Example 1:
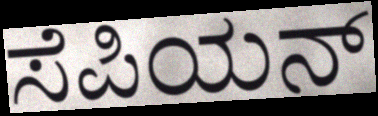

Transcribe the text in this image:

ಸೆಪಿಯನ್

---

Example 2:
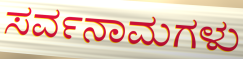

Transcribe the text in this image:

ಸರ್ವನಾಮಗಳು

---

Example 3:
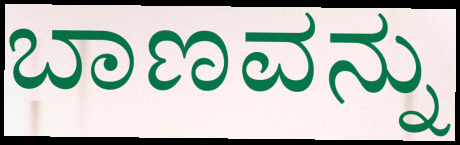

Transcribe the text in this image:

ಬಾಣವನ್ನು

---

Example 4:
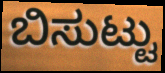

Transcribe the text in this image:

ಬಿಸುಟ್ಟು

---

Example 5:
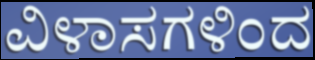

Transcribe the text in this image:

ವಿಳಾಸಗಳಿಂದ